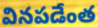
వినపడేంత